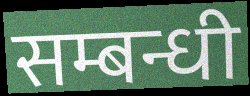
सम्‍बन्‍धी